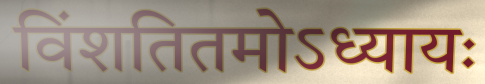
विंशतितमोऽध्यायः